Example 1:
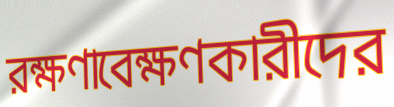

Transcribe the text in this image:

রক্ষণাবেক্ষণকারীদের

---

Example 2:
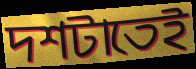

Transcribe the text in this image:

দশটাতেই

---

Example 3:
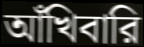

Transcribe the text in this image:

আঁখিবারি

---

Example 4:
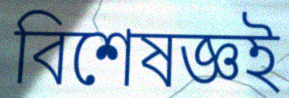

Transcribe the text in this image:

বিশেষজ্ঞই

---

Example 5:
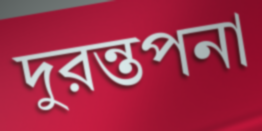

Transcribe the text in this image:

দুরন্তপনা